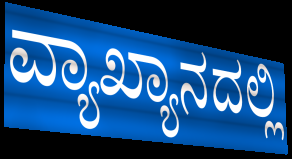
ವ್ಯಾಖ್ಯಾನದಲ್ಲಿ